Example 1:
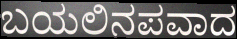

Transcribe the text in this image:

ಬಯಲಿನಪವಾದ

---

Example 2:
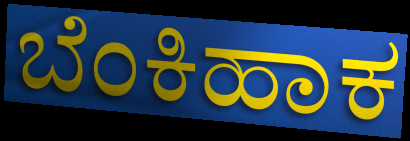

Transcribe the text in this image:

ಬೆಂಕಿಹಾಕ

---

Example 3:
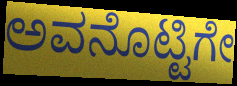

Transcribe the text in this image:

ಅವನೊಟ್ಟಿಗೇ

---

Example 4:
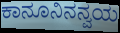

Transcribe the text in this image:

ಕಾನೂನಿನನ್ವಯ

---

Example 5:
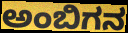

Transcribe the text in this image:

ಅಂಬಿಗನ